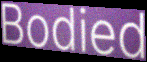
Bodied